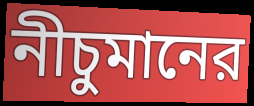
নীচুমানের